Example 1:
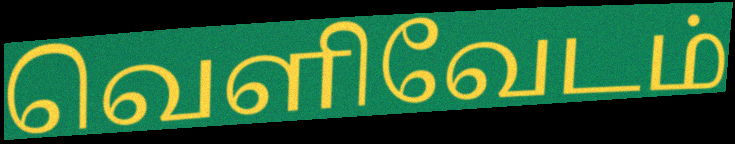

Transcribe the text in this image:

வெளிவேடம்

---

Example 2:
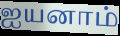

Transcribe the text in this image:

ஐயனாம்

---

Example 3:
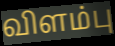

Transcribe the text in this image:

விளம்பு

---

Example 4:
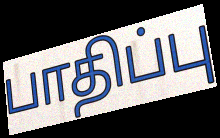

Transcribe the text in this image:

பாதிப்பு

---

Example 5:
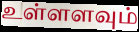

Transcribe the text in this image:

உள்ளளவும்